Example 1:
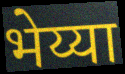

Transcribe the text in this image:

भेय्या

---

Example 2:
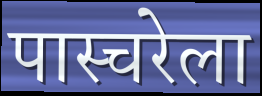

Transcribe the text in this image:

पास्चरेला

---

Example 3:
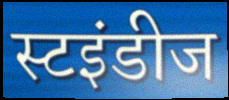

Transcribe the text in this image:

स्टइंडीज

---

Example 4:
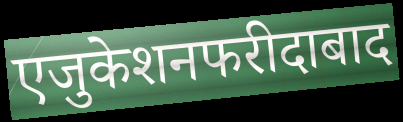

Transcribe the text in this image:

एजुकेशनफरीदाबाद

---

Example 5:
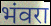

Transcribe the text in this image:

भंवरा